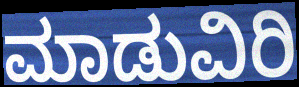
ಮಾಡುವಿರಿ